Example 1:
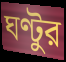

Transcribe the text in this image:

ঘণ্টুর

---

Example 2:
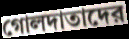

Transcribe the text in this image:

গোলদাতাদের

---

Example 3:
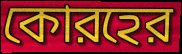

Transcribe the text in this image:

কোরহের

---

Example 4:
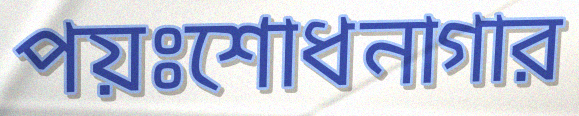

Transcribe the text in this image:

পয়ঃশোধনাগার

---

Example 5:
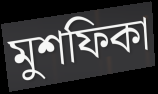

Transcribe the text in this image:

মুশফিকা